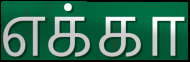
எக்கா